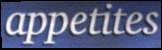
appetites